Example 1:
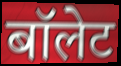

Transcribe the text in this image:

बॉलेट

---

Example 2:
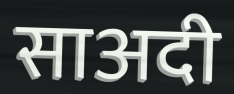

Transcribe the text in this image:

साअदी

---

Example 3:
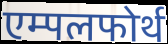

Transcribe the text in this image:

एम्पलफोर्थ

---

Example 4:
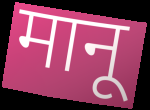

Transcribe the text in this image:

मानू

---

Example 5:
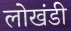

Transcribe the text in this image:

लोखंडी